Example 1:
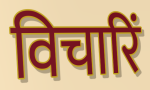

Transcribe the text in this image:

विचारिं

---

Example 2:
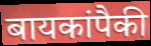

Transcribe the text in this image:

बायकांपैकी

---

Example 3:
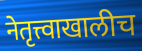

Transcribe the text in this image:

नेतृत्त्वाखालीच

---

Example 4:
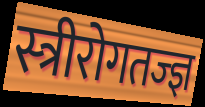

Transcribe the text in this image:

स्‍त्रीरोगतज्‍ज्ञ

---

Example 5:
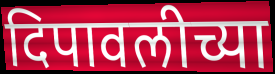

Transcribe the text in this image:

दिपावलीच्या